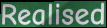
Realised